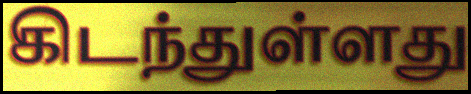
கிடந்துள்ளது